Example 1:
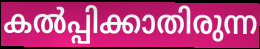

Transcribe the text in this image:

കൽപ്പിക്കാതിരുന്ന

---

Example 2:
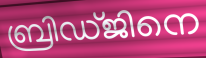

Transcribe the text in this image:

ബ്രിഡ്ജിനെ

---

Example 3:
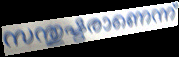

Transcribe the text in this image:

സന്തുഷ്ടരാണെന്ന്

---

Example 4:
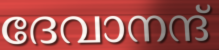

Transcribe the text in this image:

ദേവാനന്ദ്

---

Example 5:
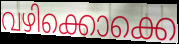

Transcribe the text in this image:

വഴിക്കൊക്കെ